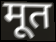
मूत